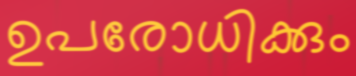
ഉപരോധിക്കും